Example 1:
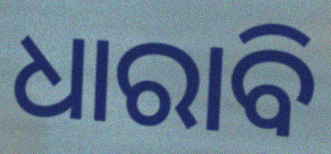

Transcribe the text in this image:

ଧାରାବି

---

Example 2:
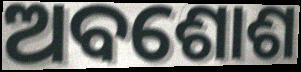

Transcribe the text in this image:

ଅବଶୋଶ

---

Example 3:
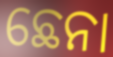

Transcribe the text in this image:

ଛେନା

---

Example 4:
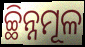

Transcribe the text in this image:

ଚ୍ଛିନ୍ନମୂଳ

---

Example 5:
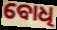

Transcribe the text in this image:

ବୋଧି